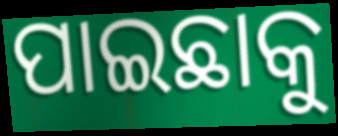
ପାଇଛାକୁ